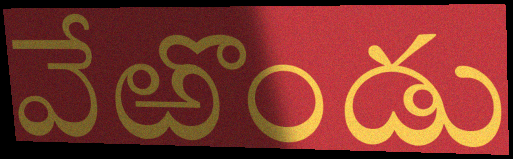
వేఱొండు